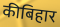
कीबिहार